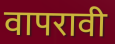
वापरावी